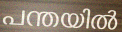
പന്തയിൽ